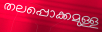
തലപ്പൊക്കമുള്ള